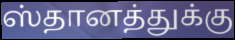
ஸ்தானத்துக்கு